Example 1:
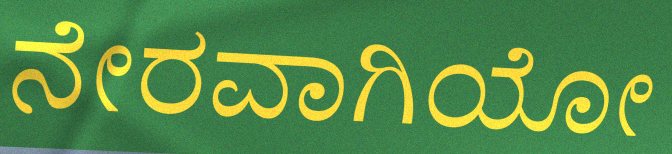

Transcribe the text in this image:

ನೇರವಾಗಿಯೋ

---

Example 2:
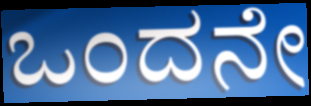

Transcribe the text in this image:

ಒಂದನೇ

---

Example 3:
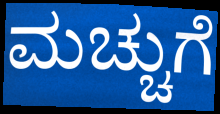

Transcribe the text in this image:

ಮಚ್ಚುಗೆ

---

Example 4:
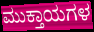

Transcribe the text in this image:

ಮುಕ್ತಾಯಗಳ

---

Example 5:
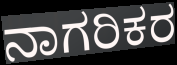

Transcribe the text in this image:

ನಾಗರಿಕರ